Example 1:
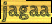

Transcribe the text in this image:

jagaa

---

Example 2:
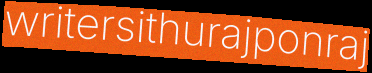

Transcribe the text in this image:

writersithurajponraj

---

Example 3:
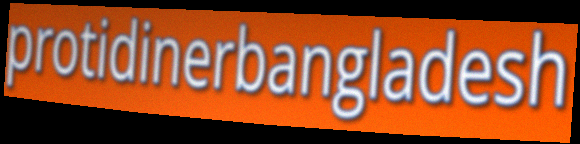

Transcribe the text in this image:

protidinerbangladesh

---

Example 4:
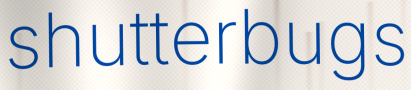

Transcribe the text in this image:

shutterbugs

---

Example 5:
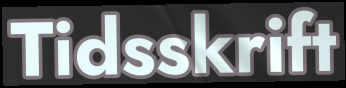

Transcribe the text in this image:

Tidsskrift